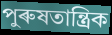
পুৰুষতান্ত্ৰিক